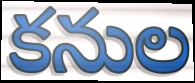
కనుల